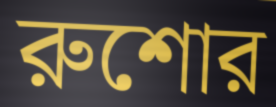
রুশোর